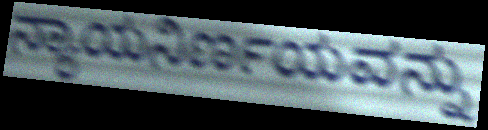
ನ್ಯಾಯನಿರ್ಣಯವನ್ನು